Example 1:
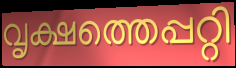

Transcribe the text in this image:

വൃക്ഷത്തെപ്പറ്റി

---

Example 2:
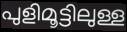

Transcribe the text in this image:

പുളിമൂട്ടിലുള്ള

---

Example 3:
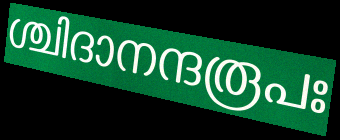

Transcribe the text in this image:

ശ്ചിദാനന്ദരൂപഃ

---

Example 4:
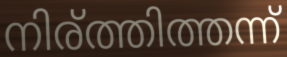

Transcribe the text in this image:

നിര്ത്തിത്തന്ന്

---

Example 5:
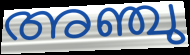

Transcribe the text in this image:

അഞ്ചു